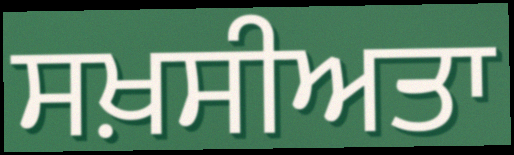
ਸਖ਼ਸੀਅਤਾ